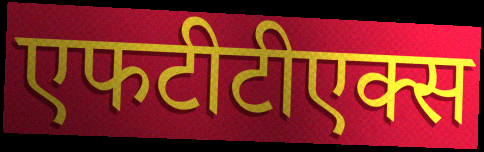
एफटीटीएक्स